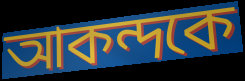
আকন্দকে